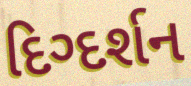
દિગ્દર્શન